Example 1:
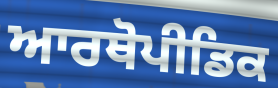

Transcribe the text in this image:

ਆਰਥੋਪੀਡਿਕ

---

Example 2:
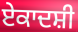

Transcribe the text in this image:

ਏਕਾਦਸ਼ੀ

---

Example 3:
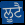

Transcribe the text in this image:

ਲੂਟੈ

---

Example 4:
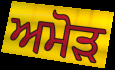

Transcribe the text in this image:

ਅਮੋੜ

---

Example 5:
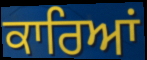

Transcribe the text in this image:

ਕਾਰਿਆਂ